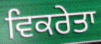
ਵਿਕਰੇਤਾ